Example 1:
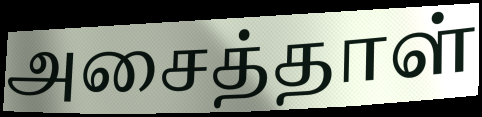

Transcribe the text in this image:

அசைத்தாள்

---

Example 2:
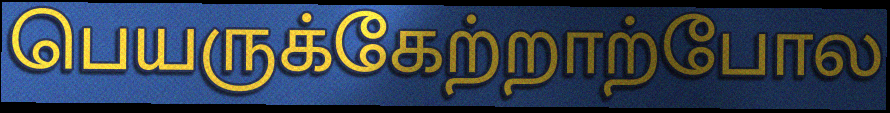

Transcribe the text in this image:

பெயருக்கேற்றாற்போல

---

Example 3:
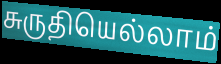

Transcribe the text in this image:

சுருதியெல்லாம்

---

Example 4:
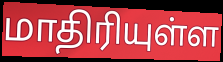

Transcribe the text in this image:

மாதிரியுள்ள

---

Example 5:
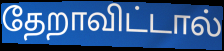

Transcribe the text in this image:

தேறாவிட்டால்